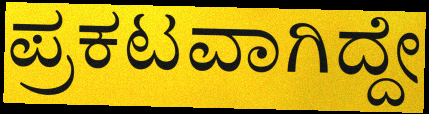
ಪ್ರಕಟವಾಗಿದ್ದೇ